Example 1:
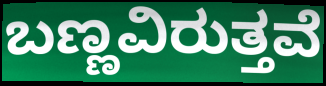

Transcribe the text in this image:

ಬಣ್ಣವಿರುತ್ತವೆ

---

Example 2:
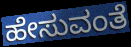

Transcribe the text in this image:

ಹೇಸುವಂತೆ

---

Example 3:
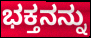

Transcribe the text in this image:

ಭಕ್ತನನ್ನು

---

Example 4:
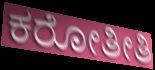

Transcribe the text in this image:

ಕರೋತೀತಿ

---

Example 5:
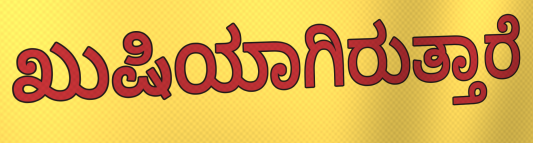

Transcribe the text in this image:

ಖುಷಿಯಾಗಿರುತ್ತಾರೆ